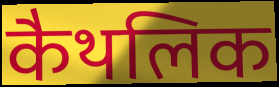
कैथलिक